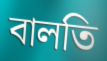
বালতি